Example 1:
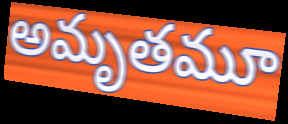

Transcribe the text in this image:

అమృతమూ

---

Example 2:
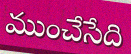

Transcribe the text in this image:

ముంచేసేది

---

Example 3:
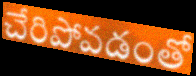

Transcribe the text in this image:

చేరిపోవడంతో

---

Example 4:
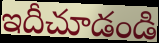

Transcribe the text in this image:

ఇదీచూడండి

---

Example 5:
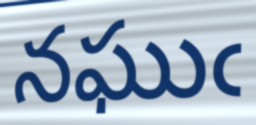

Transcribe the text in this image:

నఘుఁ